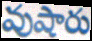
వుషారు